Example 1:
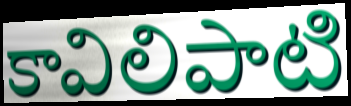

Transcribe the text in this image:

కావిలిపాటి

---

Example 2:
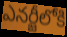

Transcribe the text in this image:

ఎనర్జీలోకి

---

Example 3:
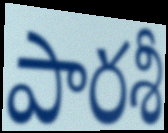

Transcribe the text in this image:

పారశీ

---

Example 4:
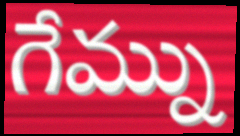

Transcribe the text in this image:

గేమ్ను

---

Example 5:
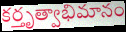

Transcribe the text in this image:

కర్తృత్వాభిమానం